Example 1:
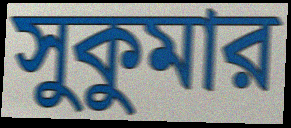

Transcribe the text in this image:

সুকুমার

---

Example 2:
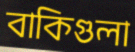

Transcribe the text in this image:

বাকিগুলা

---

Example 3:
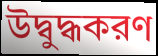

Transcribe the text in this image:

উদ্বুদ্ধকরণ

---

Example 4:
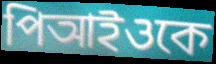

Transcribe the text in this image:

পিআইওকে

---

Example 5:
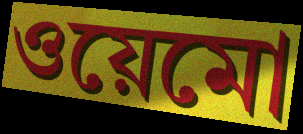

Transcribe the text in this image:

ওয়েমো